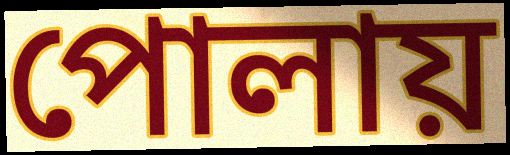
পোলায়